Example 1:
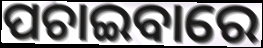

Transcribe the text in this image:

ପଚାଇବାରେ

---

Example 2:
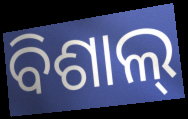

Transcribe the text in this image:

ବିଶାଲ୍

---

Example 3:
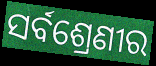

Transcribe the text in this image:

ସର୍ବଶ୍ରେଣୀର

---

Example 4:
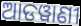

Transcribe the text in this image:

ଆଡୱାଣୀ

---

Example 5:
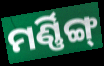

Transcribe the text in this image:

ମର୍ଣ୍ଣିଙ୍ଗ୍